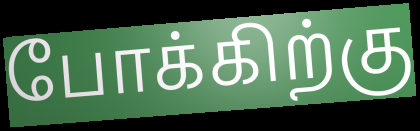
போக்கிற்கு